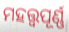
ମହତ୍ତ୍ଵପୂର୍ଣ୍ଣ